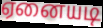
ஏனையடி